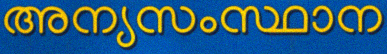
അന്യസംസ്ഥാന